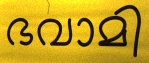
ഭവാമി